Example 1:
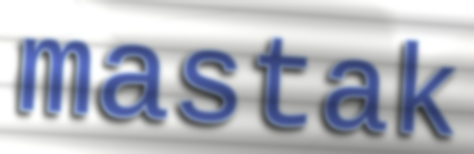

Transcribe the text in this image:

mastak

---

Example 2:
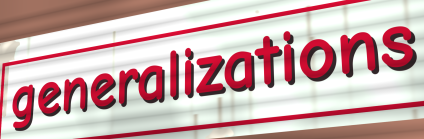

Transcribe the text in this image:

generalizations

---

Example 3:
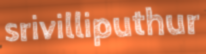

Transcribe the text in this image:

srivilliputhur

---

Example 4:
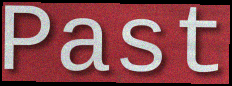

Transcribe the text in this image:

Past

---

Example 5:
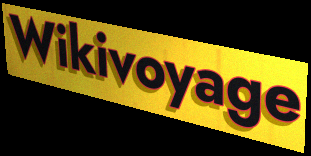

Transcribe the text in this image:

Wikivoyage